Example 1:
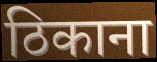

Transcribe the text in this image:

ठिकाना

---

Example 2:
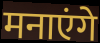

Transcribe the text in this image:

मनाएंगे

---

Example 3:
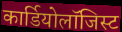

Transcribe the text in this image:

कार्डियोलॉजिस्ट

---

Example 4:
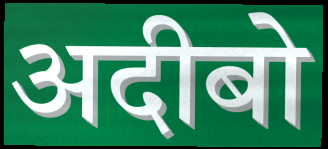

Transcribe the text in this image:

अदीबो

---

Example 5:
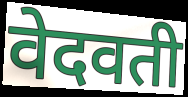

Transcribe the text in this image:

वेदवती